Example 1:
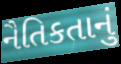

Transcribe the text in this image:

નૈતિકતાનું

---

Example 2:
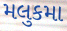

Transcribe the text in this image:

મલુકમા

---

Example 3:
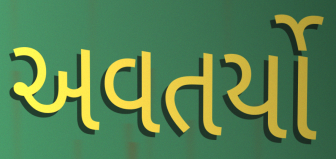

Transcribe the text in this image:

અવતર્યો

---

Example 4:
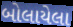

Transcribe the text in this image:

બોલાયેલા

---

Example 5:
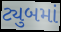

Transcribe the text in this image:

ટ્યુબમાં